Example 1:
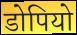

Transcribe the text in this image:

डोपियो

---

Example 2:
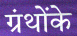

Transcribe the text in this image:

ग्रंथोंके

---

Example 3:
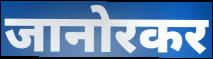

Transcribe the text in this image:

जानोरकर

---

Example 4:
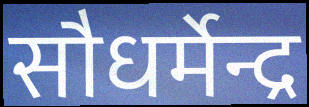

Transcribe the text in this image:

सौधर्मेन्द्र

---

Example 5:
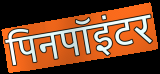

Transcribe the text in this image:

पिनपॉइंटर